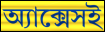
অ্যাক্সেসই